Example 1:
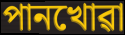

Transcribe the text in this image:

পানখোৱা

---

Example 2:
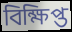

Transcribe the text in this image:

বিক্ষিপ্ত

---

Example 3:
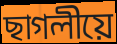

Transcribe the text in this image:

ছাগলীয়ে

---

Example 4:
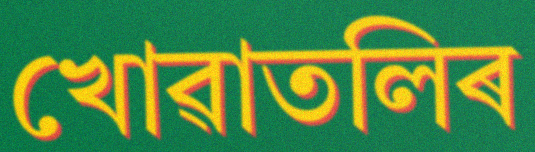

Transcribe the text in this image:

খোৱাতলিৰ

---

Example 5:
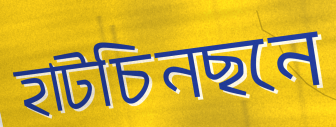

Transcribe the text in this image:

হাটচিনছনে